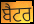
ਬੈਟਰ